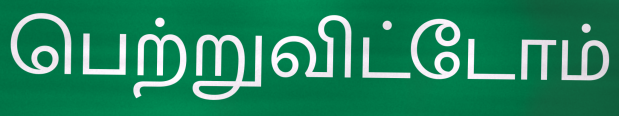
பெற்றுவிட்டோம்